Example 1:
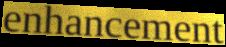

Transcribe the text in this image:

enhancement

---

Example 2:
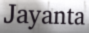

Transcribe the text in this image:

Jayanta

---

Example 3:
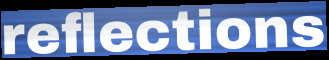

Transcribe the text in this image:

reflections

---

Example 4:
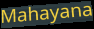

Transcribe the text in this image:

Mahayana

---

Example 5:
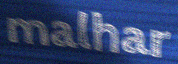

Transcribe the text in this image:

malhar